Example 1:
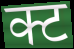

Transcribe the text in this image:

क्ट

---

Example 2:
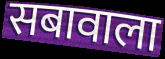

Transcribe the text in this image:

सबावाला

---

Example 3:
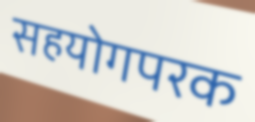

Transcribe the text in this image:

सहयोगपरक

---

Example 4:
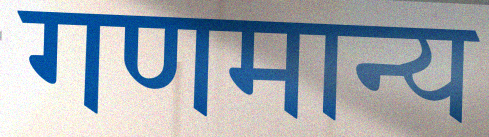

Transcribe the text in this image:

गणमान्‍य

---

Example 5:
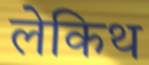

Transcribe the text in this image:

लेकिथ